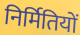
निर्मितियों